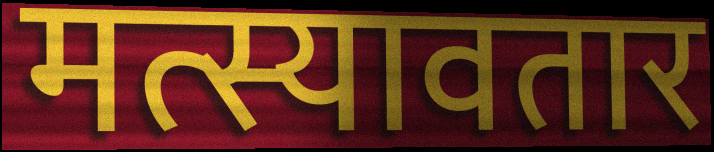
मत्स्यावतार